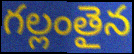
గల్లంతైన